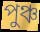
পুঞ্চ